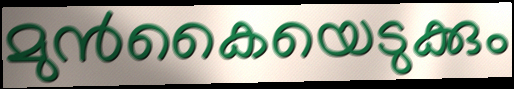
മുൻകൈയെടുക്കും